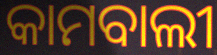
କାମବାଲୀ